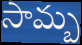
సామ్బ